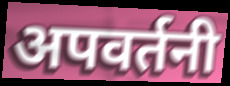
अपवर्तनी